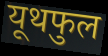
यूथफुल